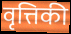
वृत्तिकी